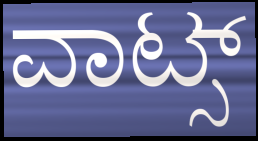
ವಾಟ್ಸ್